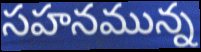
సహనమున్న